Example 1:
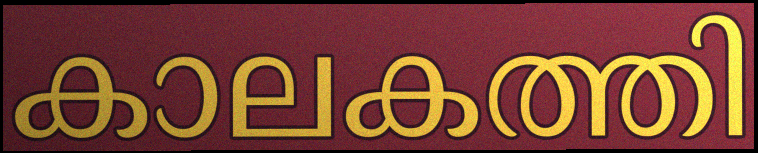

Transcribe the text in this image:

കാലകത്തി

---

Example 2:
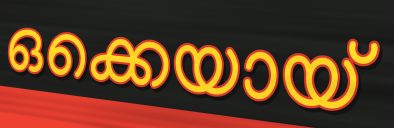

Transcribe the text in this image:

ഒക്കെയായ്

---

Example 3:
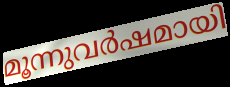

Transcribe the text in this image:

മൂന്നുവർഷമായി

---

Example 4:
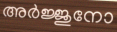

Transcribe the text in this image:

അർജ്ജുനോ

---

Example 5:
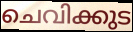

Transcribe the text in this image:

ചെവിക്കുട